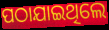
ପଠାଯାଇଥିଲେ